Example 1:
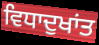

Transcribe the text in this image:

ਵਿਧਾਦੁਖਾਂਤ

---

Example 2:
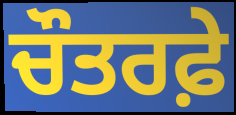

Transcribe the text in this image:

ਚੌਤਰਫ਼ੇ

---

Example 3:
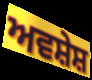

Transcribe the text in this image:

ਅਵਸ਼ੇਸ਼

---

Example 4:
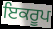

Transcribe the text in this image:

ਇਕਰੂਪ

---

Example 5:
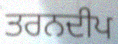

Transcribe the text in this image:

ਤਰਨਦੀਪ